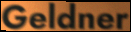
Geldner